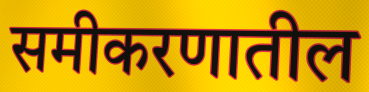
समीकरणातील